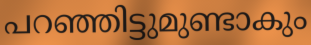
പറഞ്ഞിട്ടുമുണ്ടാകും